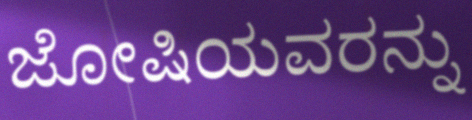
ಜೋಷಿಯವರನ್ನು